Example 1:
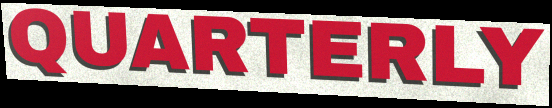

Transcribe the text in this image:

QUARTERLY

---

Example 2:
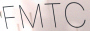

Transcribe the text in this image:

FMTC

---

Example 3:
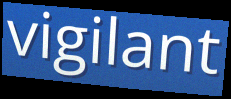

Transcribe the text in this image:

vigilant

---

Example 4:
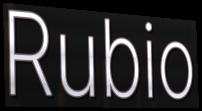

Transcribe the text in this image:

Rubio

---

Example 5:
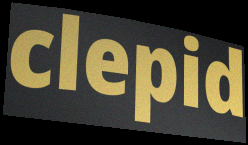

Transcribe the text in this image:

clepid